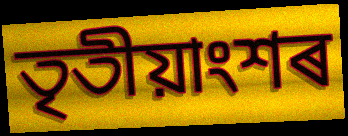
তৃতীয়াংশৰ